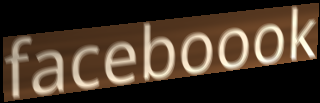
faceboook